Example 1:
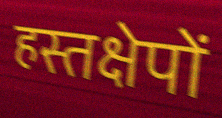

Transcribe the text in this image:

हस्तक्षेपों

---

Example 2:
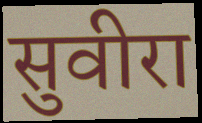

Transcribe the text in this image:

सुवीरा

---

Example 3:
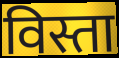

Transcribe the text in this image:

विस्ता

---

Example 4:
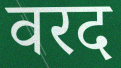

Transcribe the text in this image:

वरद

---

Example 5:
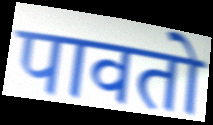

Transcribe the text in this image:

पावतो